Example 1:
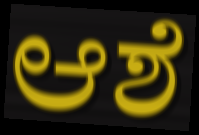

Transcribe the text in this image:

ಆಶೆ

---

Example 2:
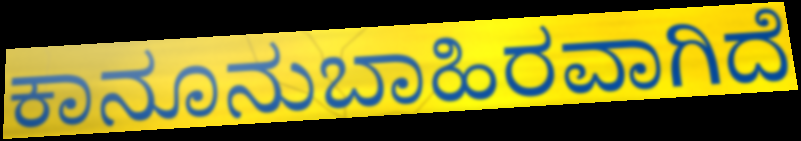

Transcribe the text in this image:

ಕಾನೂನುಬಾಹಿರವಾಗಿದೆ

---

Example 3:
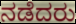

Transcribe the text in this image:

ನಡೆದರು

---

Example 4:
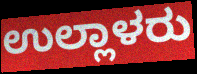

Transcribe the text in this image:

ಉಲ್ಲಾಳರು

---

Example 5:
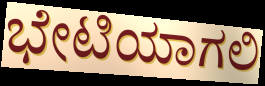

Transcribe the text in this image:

ಭೇಟಿಯಾಗಲಿ